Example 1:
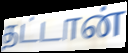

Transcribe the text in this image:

தட்டான்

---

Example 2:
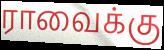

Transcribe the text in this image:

ராவைக்கு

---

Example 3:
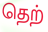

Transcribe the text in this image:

தெற்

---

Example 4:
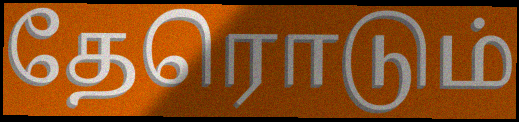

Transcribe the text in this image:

தேரொடும்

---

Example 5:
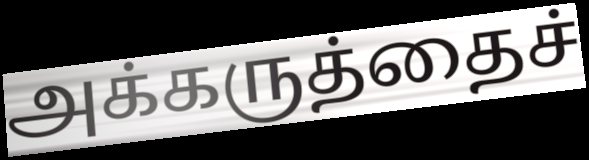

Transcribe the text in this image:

அக்கருத்தைச்